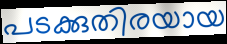
പടക്കുതിരയായ